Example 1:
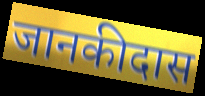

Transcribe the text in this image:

जानकीदास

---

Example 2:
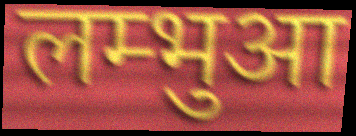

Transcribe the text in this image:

लम्भुआ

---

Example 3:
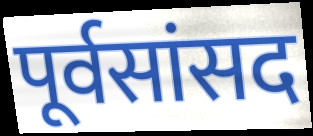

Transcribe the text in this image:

पूर्वसांसद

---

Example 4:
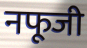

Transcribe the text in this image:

नफूजी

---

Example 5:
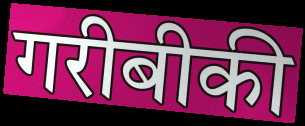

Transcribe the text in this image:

गरीबीकी